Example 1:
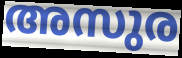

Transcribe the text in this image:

അസുര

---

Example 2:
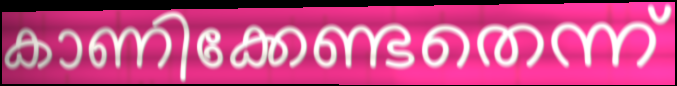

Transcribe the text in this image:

കാണിക്കേണ്ടതെന്ന്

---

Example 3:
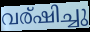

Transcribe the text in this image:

വര്ഷിച്ചു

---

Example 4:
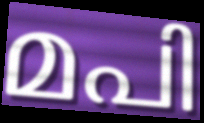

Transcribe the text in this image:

മപി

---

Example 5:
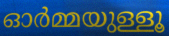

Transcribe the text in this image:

ഓർമ്മയുള്ളൂ